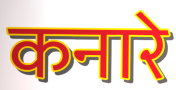
कनारे